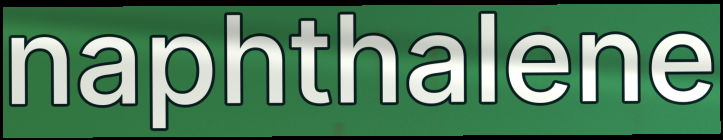
naphthalene